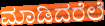
ಮಾಡಿದರೆಲೆ